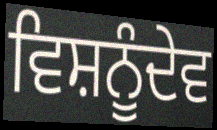
ਵਿਸ਼ਨੂੰਦੇਵ